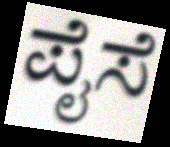
ಪೈಸೆ